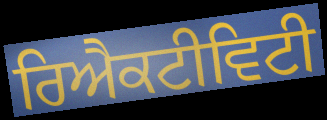
ਰਿਐਕਟੀਵਿਟੀ